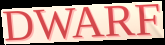
DWARF